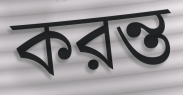
করন্ত